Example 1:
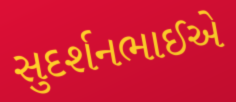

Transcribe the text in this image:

સુદર્શનભાઈએ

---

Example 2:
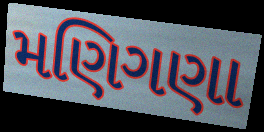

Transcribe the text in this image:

મણિગણા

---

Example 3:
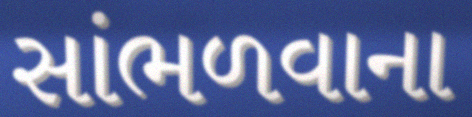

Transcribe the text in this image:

સાંભળવાના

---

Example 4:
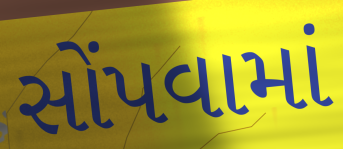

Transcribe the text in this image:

સોંપવામાં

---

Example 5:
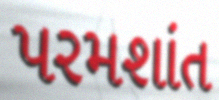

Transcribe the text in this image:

પરમશાંત